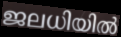
ജലധിയിൽ